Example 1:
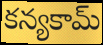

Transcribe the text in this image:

కన్యకామ్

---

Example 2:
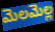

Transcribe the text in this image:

మెలమెల్ల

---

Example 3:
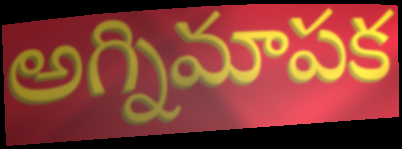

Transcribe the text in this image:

అగ్నిమాపక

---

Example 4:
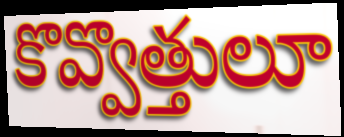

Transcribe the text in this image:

కొవ్వొత్తులూ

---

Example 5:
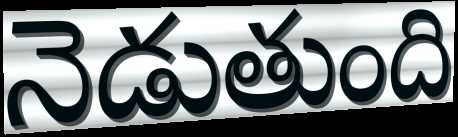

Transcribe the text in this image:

నెడుతుంది